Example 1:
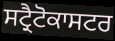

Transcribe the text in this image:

ਸਟ੍ਰੈਟੋਕਾਸਟਰ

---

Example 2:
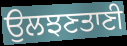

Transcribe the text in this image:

ਉਲਝਣਤਾਣੀ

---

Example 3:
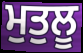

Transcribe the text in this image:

ਮੁਤੁਲੂ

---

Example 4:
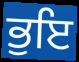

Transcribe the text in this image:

ਭੁਇ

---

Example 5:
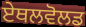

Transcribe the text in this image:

ਏਥਲਵੋਲਡ